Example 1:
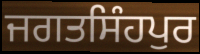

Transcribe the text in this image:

ਜਗਤਸਿੰਹਪੁਰ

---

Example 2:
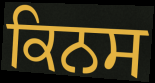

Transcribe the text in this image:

ਕਿਨਸ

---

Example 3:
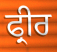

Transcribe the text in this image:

ਫ੍ਰੀਰ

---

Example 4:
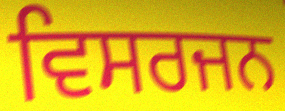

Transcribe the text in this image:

ਵਿਸਰਜਨ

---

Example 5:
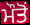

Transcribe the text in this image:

ਮੌਤੋਂ